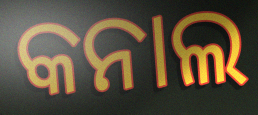
କନାଲ